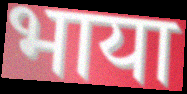
भाया